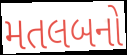
મતલબનો